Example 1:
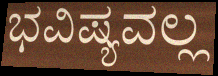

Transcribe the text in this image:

ಭವಿಷ್ಯವಲ್ಲ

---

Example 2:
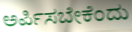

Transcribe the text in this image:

ಅರ್ಪಿಸಬೇಕೆಂದು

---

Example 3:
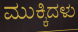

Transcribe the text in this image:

ಮುಕ್ಕಿದಳು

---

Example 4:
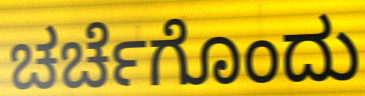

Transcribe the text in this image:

ಚರ್ಚೆಗೊಂದು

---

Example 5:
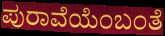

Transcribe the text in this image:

ಪುರಾವೆಯೆಂಬಂತೆ